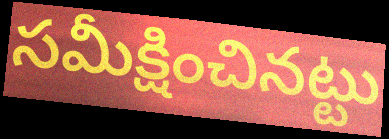
సమీక్షించినట్టు